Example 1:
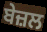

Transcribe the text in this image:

ਬੇਜ਼ਲ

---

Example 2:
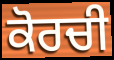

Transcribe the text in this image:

ਕੋਰਚੀ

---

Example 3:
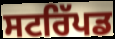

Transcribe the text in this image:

ਸਟਰਿੱਪਡ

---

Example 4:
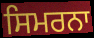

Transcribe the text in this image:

ਸਿਮਰਨਾ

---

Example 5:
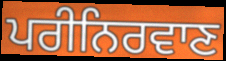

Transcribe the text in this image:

ਪਰੀਨਿਰਵਾਣ